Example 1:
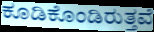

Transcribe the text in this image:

ಕೂಡಿಕೊಂಡಿರುತ್ತವೆ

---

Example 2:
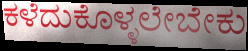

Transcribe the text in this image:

ಕಳೆದುಕೊಳ್ಳಲೇಬೇಕು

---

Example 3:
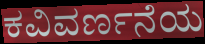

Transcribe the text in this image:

ಕವಿವರ್ಣನೆಯ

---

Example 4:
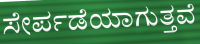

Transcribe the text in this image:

ಸೇರ್ಪಡೆಯಾಗುತ್ತವೆ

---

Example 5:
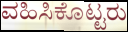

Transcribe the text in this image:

ವಹಿಸಿಕೊಟ್ಟರು